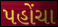
પહોંચા